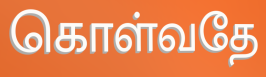
கொள்வதே